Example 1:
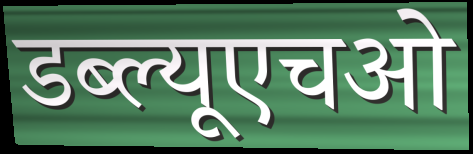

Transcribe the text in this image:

डब्ल्यूएचओ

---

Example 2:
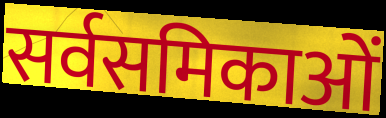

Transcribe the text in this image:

सर्वसमिकाओं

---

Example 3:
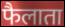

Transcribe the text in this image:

फैलाता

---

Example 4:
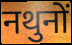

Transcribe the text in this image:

नथुनों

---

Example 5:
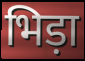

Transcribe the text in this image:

भिड़ा